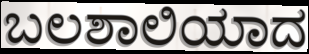
ಬಲಶಾಲಿಯಾದ